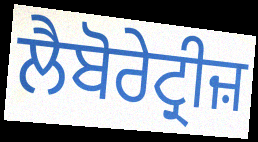
ਲੈਬੋਰੇਟ੍ਰੀਜ਼